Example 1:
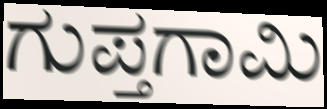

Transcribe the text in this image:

ಗುಪ್ತಗಾಮಿ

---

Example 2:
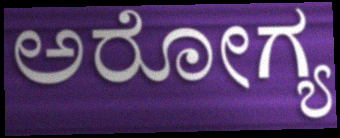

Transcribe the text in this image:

ಅರೋಗ್ಯ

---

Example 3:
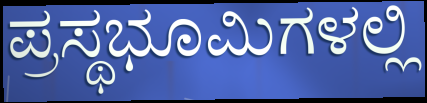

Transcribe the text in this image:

ಪ್ರಸ್ಥಭೂಮಿಗಳಲ್ಲಿ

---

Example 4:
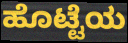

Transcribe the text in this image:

ಹೊಟ್ಟೆಯ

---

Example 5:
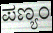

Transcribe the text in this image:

ಪಣ್ಯಂ